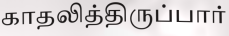
காதலித்திருப்பார்